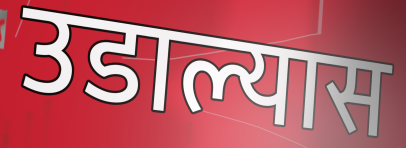
उडाल्यास